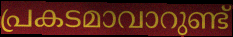
പ്രകടമാവാറുണ്ട്